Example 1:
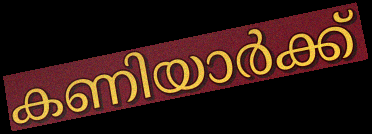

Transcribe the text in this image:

കണിയാർക്ക്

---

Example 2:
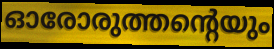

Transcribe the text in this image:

ഓരോരുത്തന്റെയും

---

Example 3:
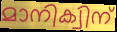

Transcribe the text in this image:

മാനിക്വിന്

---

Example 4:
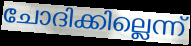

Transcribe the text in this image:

ചോദിക്കില്ലെന്ന്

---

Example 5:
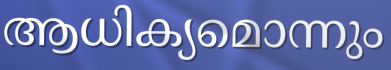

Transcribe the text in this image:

ആധിക്യമൊന്നും